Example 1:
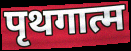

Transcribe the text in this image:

पृथगात्म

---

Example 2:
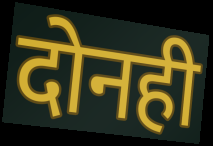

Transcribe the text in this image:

दोनही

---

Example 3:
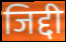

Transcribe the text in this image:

जिद्दी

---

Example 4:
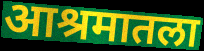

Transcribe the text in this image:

आश्रमातला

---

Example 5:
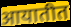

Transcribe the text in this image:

आयातीत